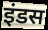
इंडस